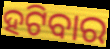
ହଟିବାର